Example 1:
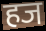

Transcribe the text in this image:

हज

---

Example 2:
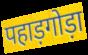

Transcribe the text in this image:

पहाड़गोड़ा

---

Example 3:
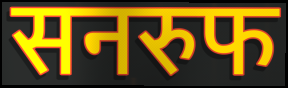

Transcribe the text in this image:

सनरुफ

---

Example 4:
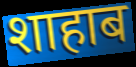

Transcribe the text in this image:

शाहाब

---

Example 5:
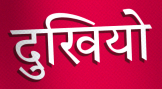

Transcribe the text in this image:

दुखियो